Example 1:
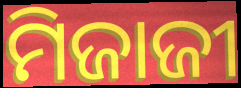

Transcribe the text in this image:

ମିଜାଜୀ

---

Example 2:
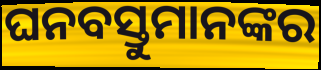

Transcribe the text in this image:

ଘନବସ୍ତୁମାନଙ୍କର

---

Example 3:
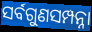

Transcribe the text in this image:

ସର୍ବଗୁଣସମ୍ପନ୍ନା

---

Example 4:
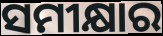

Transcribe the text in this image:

ସମୀକ୍ଷାର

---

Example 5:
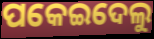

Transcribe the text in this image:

ପକେଇଦେଲୁ